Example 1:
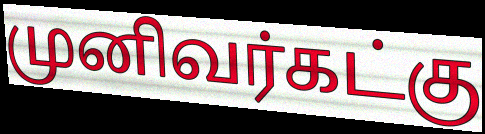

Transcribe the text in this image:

முனிவர்கட்கு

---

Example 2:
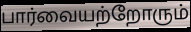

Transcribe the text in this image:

பார்வையற்றோரும்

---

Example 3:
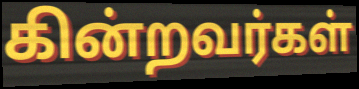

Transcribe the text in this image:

கின்றவர்கள்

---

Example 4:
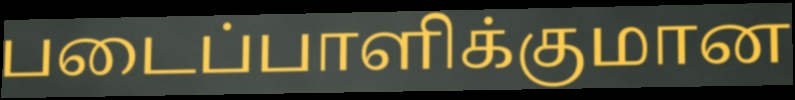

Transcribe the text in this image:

படைப்பாளிக்குமான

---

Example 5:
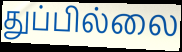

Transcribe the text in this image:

துப்பில்லை